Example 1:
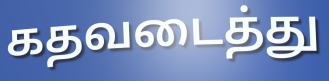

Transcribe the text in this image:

கதவடைத்து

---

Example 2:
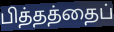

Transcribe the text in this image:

பித்தத்தைப்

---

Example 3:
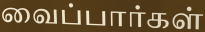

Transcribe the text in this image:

வைப்பார்கள்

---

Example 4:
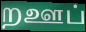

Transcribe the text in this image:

றஊப்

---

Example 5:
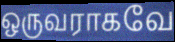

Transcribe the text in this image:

ஒருவராகவே